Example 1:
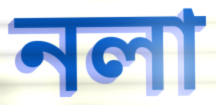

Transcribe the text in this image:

নলা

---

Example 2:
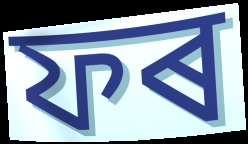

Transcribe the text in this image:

ফৰ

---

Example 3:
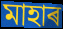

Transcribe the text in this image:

মাহাৰ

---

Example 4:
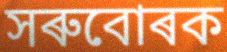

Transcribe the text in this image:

সৰুবোৰক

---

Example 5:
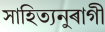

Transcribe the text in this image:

সাহিত্য়নুৰাগী